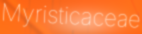
Myristicaceae